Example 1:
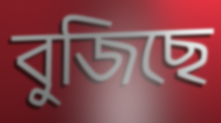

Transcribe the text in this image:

বুজিছে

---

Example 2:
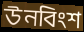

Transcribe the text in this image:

উনবিংশ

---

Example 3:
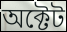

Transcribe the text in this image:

অক্টেট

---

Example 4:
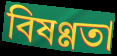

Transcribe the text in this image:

বিষণ্ণতা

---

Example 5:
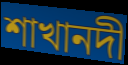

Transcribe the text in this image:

শাখানদী